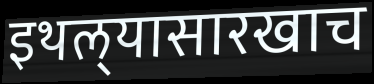
इथल्यासारखाच